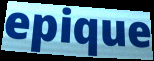
epique